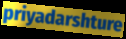
priyadarshture